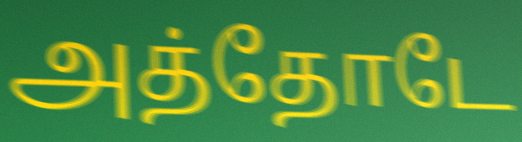
அத்தோடே